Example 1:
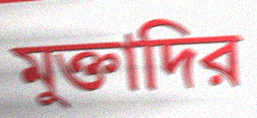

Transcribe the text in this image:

মুক্তাদির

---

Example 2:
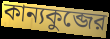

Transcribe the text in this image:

কান্যকুব্জের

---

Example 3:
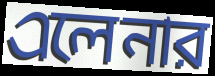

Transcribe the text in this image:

এলেনার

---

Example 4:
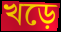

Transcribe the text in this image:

খড়ে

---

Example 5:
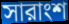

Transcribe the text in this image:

সারাংশ